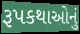
રૂપકથાઓનું